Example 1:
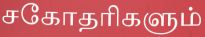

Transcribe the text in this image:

சகோதரிகளும்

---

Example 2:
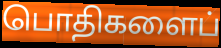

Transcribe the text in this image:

பொதிகளைப்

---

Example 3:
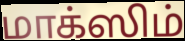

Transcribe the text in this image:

மாக்ஸிம்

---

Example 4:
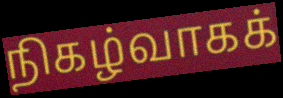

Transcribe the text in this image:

நிகழ்வாகக்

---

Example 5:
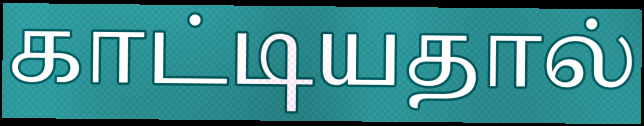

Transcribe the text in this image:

காட்டியதால்